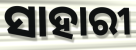
ସାହାରୀ